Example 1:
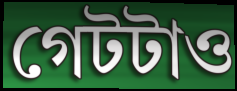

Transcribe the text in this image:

গেটটাও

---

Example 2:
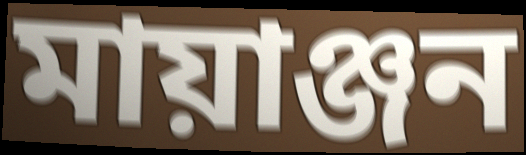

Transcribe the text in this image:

মায়াঞ্জন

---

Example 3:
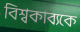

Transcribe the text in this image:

বিশ্বকাব্যকে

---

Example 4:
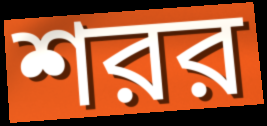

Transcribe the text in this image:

শরর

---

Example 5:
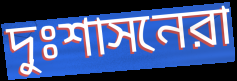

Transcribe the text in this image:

দুঃশাসনেরা